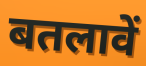
बतलावें